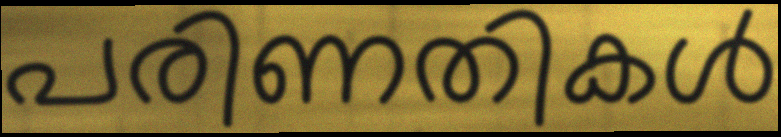
പരിണതികൾ